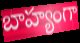
బాహ్యంగా